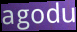
agodu